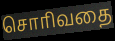
சொரிவதை